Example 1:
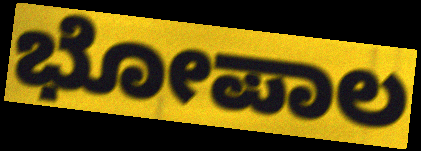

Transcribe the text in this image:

ಭೋಪಾಲ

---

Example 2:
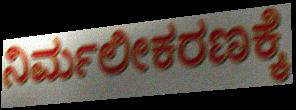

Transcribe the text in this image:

ನಿರ್ಮಲೀಕರಣಕ್ಕೆ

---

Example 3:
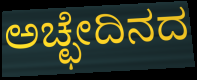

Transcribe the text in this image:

ಅಚ್ಛೇದಿನದ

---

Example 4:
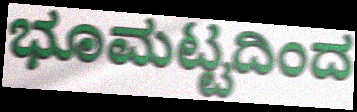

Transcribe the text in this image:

ಭೂಮಟ್ಟದಿಂದ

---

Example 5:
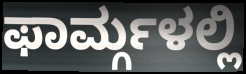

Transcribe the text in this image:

ಫಾರ್ಮ್ಗಳಲ್ಲಿ